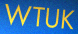
WTUK